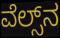
ವೆಲ್ಸ್‌ನ